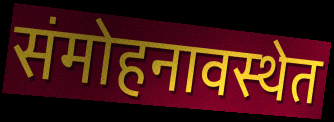
संमोहनावस्थेत